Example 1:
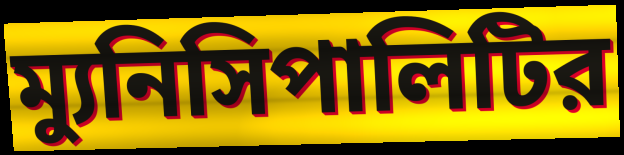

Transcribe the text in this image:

ম্যুনিসিপালিটির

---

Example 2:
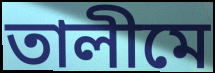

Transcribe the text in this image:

তালীমে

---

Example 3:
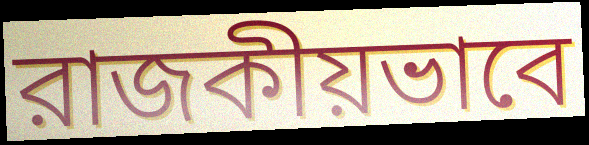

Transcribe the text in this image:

রাজকীয়ভাবে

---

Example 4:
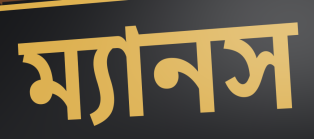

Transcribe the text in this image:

ম্যানস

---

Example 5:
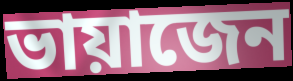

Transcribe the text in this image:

ভায়াজেন